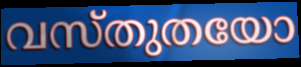
വസ്തുതയോ